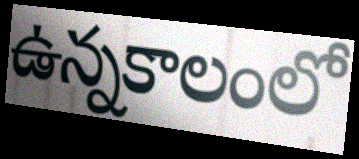
ఉన్నకాలంలో